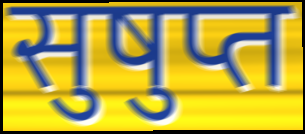
सुषुप्त